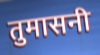
तुमासनी